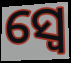
ସ୍ୱେ